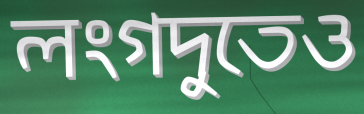
লংগদুতেও